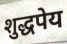
शुद्धपेय